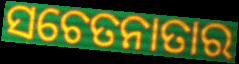
ସଚେତନାତାର